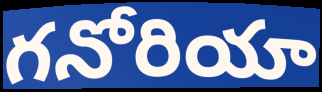
గనోరియా